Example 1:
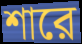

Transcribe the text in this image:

শারে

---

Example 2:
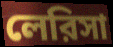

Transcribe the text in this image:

লেরিসা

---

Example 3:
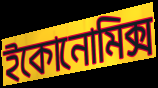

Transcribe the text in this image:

ইকোনোমিক্স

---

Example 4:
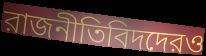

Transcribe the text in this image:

রাজনীতিবিদদেরও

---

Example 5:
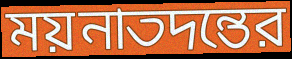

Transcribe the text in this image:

ময়নাতদন্তের